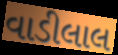
વાડીલાલ